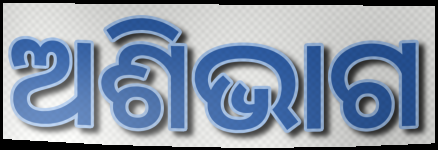
ଅଶିଭାଗ